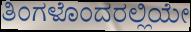
ತಿಂಗಳೊಂದರಲ್ಲಿಯೇ